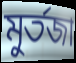
মুর্তজা